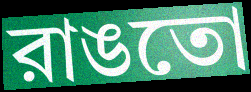
রাঙতো